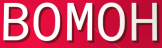
BOMOH